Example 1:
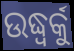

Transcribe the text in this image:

ଉଦ୍ଧ୍ୱର୍କୁ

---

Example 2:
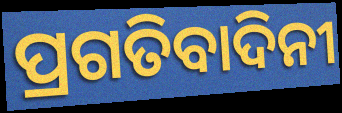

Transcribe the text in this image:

ପ୍ରଗତିବାଦିନୀ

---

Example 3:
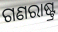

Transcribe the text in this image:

ଗଣରାଷ୍ଟ୍ର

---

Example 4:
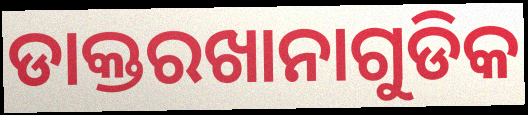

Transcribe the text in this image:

ଡାକ୍ତରଖାନାଗୁଡିକ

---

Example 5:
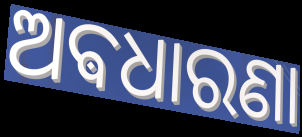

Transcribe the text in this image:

ଅଵଧାରଣା